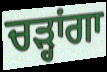
ਚੜ੍ਹਾਂਗਾ